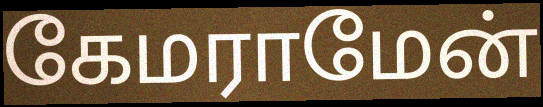
கேமராமேன்